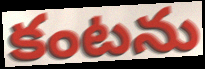
కంటను